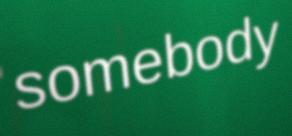
somebody